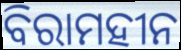
ବିରାମହୀନ